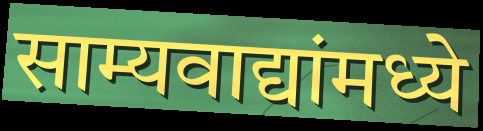
साम्यवाद्यांमध्ये